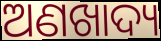
ଅଣଖାଦ୍ୟ